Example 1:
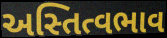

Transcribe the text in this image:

અસ્તિત્વભાવ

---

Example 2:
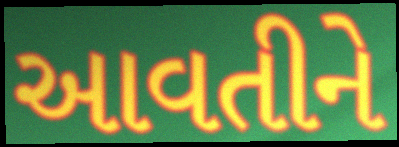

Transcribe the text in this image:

આવતીને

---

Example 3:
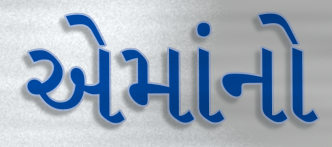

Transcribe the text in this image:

એમાંનો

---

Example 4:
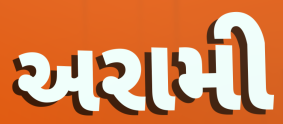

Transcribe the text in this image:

અરામી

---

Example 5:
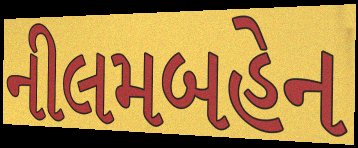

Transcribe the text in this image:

નીલમબહેન